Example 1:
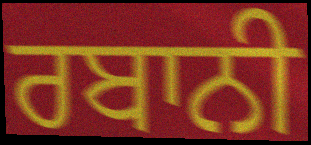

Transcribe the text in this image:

ਰਬਾਨੀ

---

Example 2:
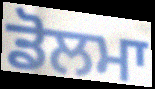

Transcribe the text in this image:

ਡੋਲਮਾ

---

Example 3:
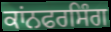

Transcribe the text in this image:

ਕਾਂਨਫਰਸਿੰਗ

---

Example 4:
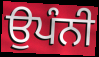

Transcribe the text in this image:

ਉਪੰਨੀ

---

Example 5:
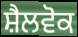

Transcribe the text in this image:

ਸ਼ੈਲਵੋਕ